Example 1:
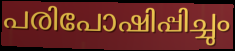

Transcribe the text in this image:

പരിപോഷിപ്പിച്ചും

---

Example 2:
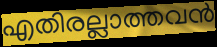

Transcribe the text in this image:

എതിരല്ലാത്തവൻ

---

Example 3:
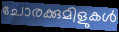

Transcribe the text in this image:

ചോരക്കുമിളുകൾ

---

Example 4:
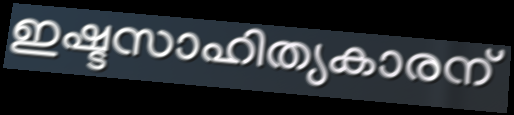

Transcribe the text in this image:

ഇഷ്ടസാഹിത്യകാരന്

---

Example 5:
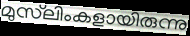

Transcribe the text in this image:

മുസ്‌ലിംകളായിരുന്നു